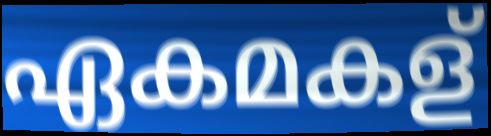
ഏകമകള്